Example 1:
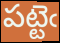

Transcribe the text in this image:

పట్టెఁ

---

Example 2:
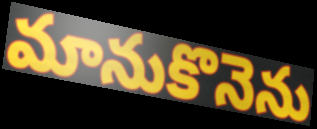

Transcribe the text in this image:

మానుకొనెను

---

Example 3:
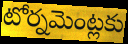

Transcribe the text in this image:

టోర్నమెంట్లకు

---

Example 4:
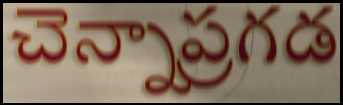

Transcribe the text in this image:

చెన్నాప్రగడ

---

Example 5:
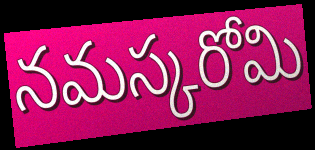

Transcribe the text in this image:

నమస్కరోమి